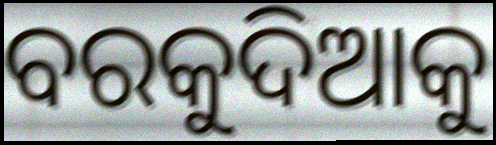
ବରକୁଦିଆକୁ